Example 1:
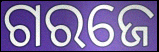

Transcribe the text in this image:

ଗରଜେ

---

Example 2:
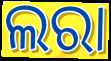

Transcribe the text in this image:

ଲରା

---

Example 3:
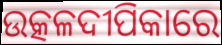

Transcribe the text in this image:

ଉତ୍କଳଦୀପିକାରେ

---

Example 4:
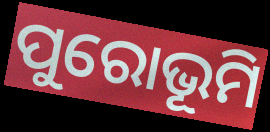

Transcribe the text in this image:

ପୁରୋଭୂମି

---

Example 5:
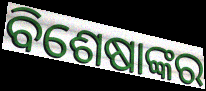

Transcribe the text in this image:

ବିଶେଷାଙ୍କର